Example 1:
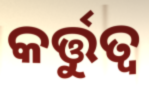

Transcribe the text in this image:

କର୍ତ୍ତୁତ୍ୱ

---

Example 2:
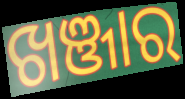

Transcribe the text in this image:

ଖଞ୍ଜାର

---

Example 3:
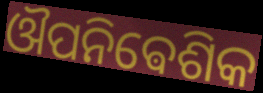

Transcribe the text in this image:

ଔପନିଵେଶିକ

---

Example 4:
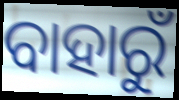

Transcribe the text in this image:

ବାହାରୁଁ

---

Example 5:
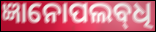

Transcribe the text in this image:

ଜ୍ଞାନୋପଲବ୍‌ଧି